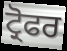
ਟ੍ਰੋਫਰ